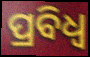
ପ୍ରବିଧ୍ଵ